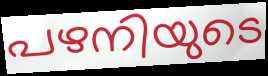
പഴനിയുടെ